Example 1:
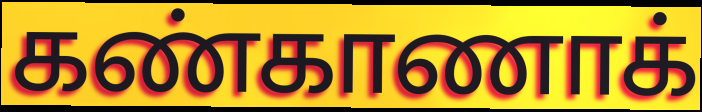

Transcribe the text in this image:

கண்காணாக்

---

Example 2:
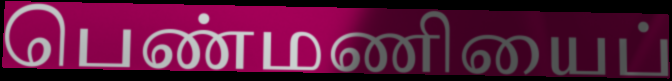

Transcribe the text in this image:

பெண்மணியைப்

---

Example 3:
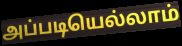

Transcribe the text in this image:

அப்படியெல்லாம்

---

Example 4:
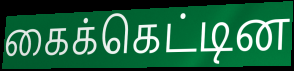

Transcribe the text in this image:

கைக்கெட்டின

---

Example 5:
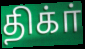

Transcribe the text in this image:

திக்ர்